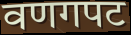
वणगपट